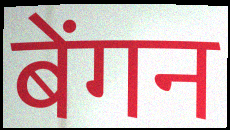
बेंगन